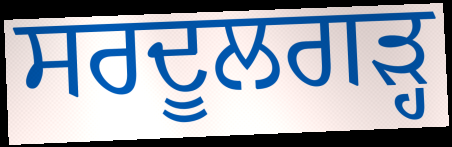
ਸਰਦੂਲਗੜ੍ਹ